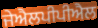
ਜੇਐਲਪੀਪੀਐਲ